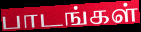
பாடங்கள்